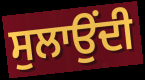
ਸੁਲਾਉਂਦੀ